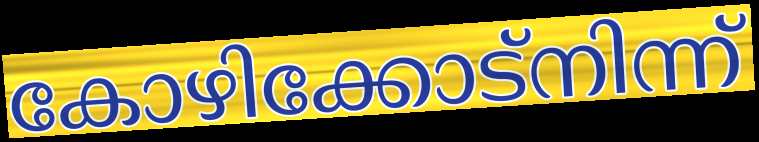
കോഴിക്കോട്നിന്ന്